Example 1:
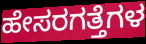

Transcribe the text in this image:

ಹೇಸರಗತ್ತೆಗಳ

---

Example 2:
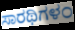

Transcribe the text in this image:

ಸಾರಥಿಗಳಂ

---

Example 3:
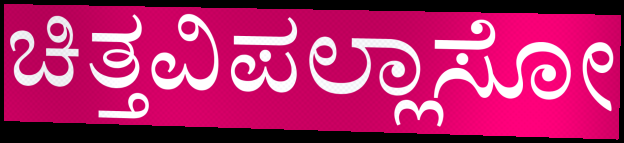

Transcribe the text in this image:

ಚಿತ್ತವಿಪಲ್ಲಾಸೋ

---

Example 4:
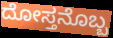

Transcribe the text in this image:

ದೋಸ್ತನೊಬ್ಬ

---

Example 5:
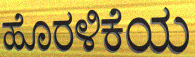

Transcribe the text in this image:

ಹೊರಳಿಕೆಯ